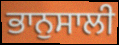
ਭਾਨੁਸਾਲੀ